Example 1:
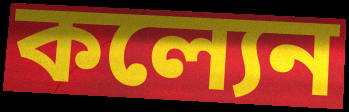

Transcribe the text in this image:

কল্যেন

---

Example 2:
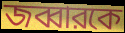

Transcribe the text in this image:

জব্বারকে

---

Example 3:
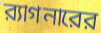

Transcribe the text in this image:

র‍্যাগনারের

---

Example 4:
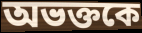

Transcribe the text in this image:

অভক্তকে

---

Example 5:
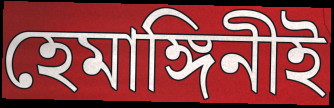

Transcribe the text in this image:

হেমাঙ্গিনীই